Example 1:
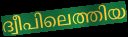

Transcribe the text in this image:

ദ്വീപിലെത്തിയ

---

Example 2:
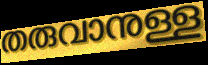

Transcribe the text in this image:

തരുവാനുള്ള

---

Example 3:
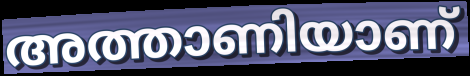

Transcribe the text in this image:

അത്താണിയാണ്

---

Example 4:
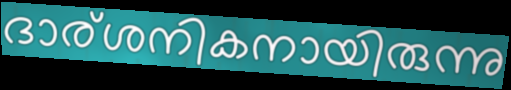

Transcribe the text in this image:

ദാര്ശനികനായിരുന്നു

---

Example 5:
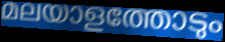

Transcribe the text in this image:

മലയാളത്തോടും